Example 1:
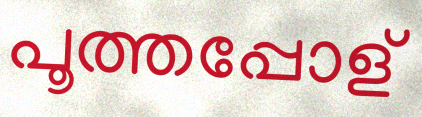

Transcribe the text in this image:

പൂത്തപ്പോള്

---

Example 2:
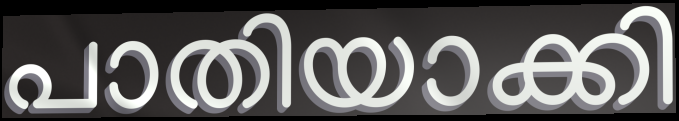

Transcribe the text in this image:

പാതിയാക്കി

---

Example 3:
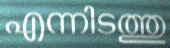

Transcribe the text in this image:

എന്നിടത്തു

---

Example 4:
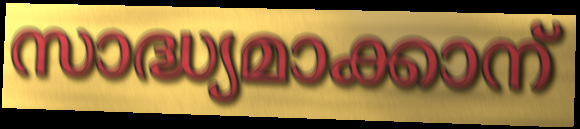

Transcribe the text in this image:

സാദ്ധ്യമാക്കാന്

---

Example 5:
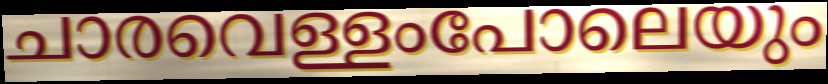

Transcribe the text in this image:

ചാരവെള്ളംപോലെയും